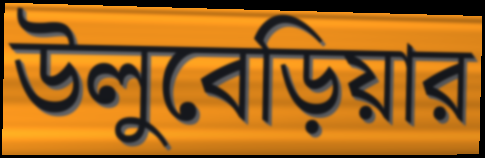
উলুবেড়িয়ার